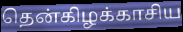
தென்கிழக்காசிய